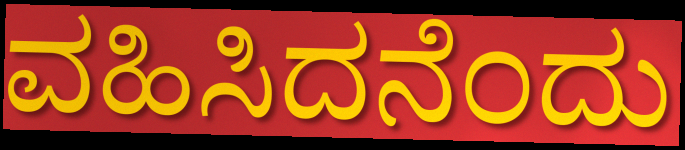
ವಹಿಸಿದನೆಂದು